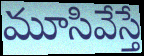
మూసివేస్తే